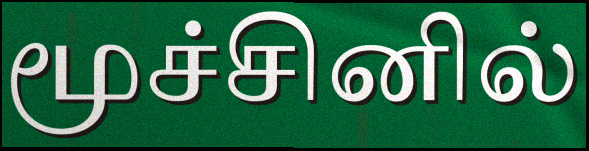
மூச்சினில்